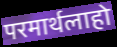
परमार्थलाहो